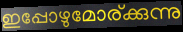
ഇപ്പോഴുമോര്ക്കുന്നു